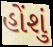
હોંશું